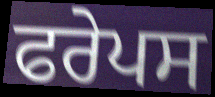
ਫਰੇਪਸ